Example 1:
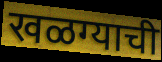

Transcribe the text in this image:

खळग्याची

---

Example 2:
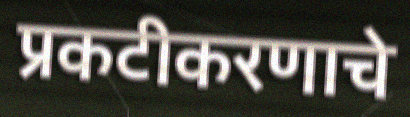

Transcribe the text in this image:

प्रकटीकरणाचे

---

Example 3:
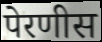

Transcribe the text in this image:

पेरणीस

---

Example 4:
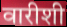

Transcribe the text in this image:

वारीशी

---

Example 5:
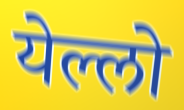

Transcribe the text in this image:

येल्लो